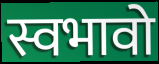
स्वभावो